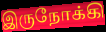
இருநோக்கி